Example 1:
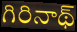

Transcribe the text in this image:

గిరినాథ్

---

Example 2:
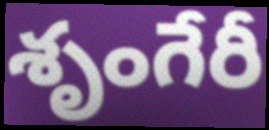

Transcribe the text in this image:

శృంగేరీ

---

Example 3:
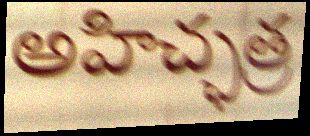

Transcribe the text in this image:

అహిచ్ఛత్ర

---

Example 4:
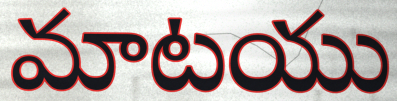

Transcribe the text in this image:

మాటయు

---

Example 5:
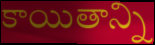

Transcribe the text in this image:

కాయితాన్ని